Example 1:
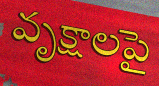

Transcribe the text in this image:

వృక్షాలపై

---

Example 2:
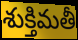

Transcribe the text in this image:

శుక్తిమతీ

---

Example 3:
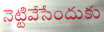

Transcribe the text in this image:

నెట్టివేసేందుకు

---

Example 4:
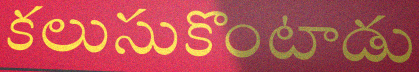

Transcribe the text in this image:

కలుసుకొంటాడు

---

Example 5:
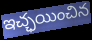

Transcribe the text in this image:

ఇచ్ఛయించిన